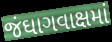
જંઘાગવાક્ષમાં